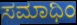
ಸಮಾಧಿಂ